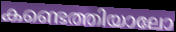
കണ്ടെത്തിയാലോ